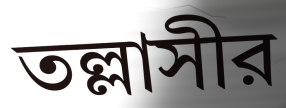
তল্লাসীর